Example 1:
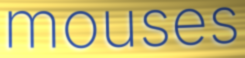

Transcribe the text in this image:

mouses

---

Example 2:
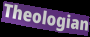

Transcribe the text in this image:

Theologian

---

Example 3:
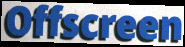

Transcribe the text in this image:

Offscreen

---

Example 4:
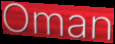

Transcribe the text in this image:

Oman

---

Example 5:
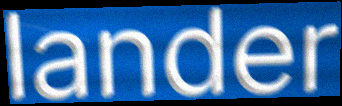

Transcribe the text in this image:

lander